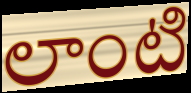
లాంటి